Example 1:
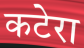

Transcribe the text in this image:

कटेरा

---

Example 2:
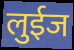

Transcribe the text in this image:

लुईज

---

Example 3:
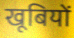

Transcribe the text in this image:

खूबियों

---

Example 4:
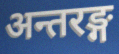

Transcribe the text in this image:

अन्तरङ्ग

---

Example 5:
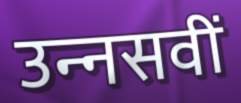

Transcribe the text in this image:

उन्नसवीं